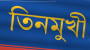
তিনমুখী